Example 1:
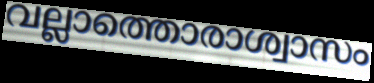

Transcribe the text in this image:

വല്ലാത്തൊരാശ്വാസം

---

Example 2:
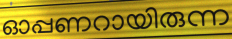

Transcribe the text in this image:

ഓപ്പണറായിരുന്ന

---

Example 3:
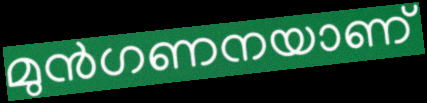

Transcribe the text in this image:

മുൻഗണനയാണ്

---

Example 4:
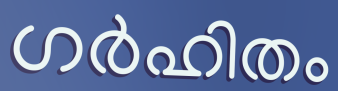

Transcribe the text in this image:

ഗർഹിതം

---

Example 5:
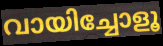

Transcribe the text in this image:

വായിച്ചോളൂ